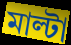
মাল্টা